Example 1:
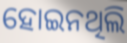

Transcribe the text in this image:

ହୋଇନଥିଲି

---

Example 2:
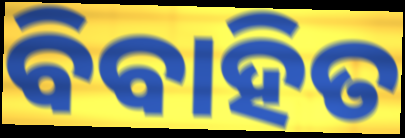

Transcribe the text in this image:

ବିବାହିତ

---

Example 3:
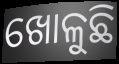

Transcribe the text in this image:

ଖୋଳୁଛି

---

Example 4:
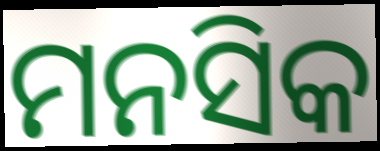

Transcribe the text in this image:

ମନସିକ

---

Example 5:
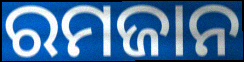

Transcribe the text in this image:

ରମଜାନ